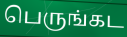
பெருங்கட